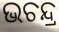
ଭଚନ୍ଦ୍ର